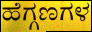
ಹೆಗ್ಗಣಗಳ